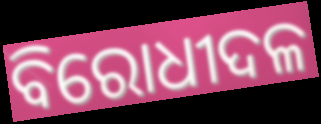
ବିରୋଧୀଦଳ